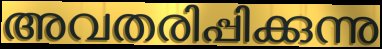
അവതരിപ്പിക്കുന്നു